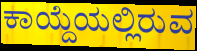
ಕಾಯ್ದೆಯಲ್ಲಿರುವ